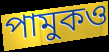
পামুকও